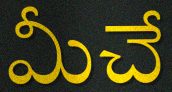
మీచే